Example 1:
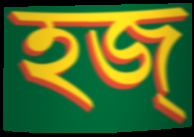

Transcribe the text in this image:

হজ্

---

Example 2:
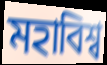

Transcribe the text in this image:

মহাবিশ্ব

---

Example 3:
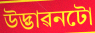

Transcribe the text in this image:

উদ্ভাৱনটো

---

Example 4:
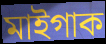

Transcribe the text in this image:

মাইগাক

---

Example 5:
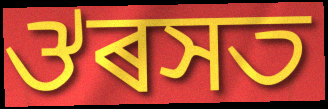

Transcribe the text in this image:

ঔৰসত